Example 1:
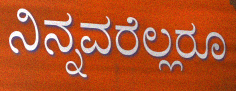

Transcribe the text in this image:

ನಿನ್ನವರೆಲ್ಲರೂ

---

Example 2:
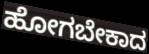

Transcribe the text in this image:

ಹೋಗಬೇಕಾದ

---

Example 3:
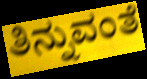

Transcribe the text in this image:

ತಿನ್ನುವಂತೆ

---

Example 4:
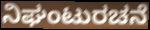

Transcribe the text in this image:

ನಿಘಂಟುರಚನೆ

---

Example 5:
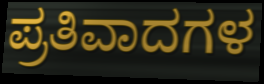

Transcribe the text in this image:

ಪ್ರತಿವಾದಗಳ